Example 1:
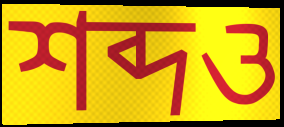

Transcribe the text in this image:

শব্দও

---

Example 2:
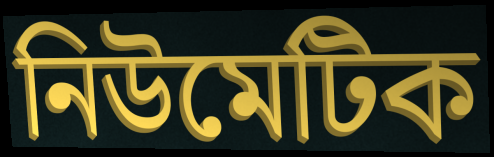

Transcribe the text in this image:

নিউমেটিক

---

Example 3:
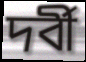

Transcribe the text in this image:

দর্বী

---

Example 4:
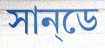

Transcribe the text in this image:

সান্‌ডে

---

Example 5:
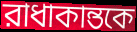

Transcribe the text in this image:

রাধাকান্তকে